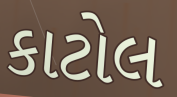
કાટોલ